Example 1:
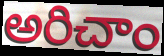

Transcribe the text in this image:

అరిచాం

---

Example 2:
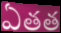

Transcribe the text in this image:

ఏతత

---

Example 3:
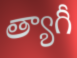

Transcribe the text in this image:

త్యాగీ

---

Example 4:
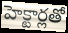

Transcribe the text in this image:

హెక్టార్లతో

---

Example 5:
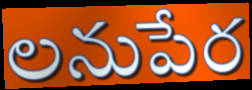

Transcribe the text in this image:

లనుపేర